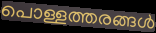
പൊള്ളത്തരങ്ങൾ